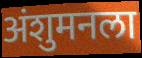
अंशुमनला